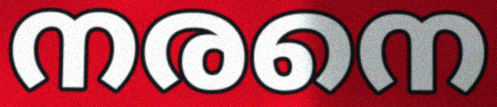
നരനെ